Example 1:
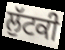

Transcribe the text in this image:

ਲੁੱਟਕੀ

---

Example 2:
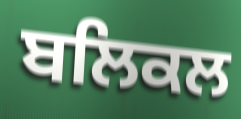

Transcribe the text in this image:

ਬਲਿਕਲ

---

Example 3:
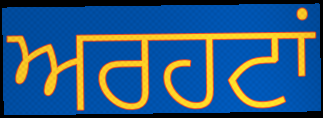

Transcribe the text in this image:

ਅਰਹਟਾਂ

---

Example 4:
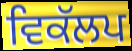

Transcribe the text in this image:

ਵਿਕੱਲਪ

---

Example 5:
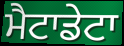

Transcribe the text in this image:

ਮੈਟਾਡੇਟਾ